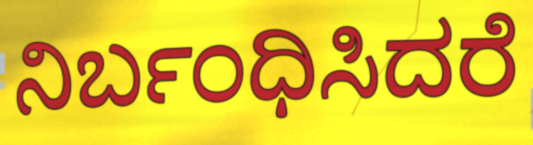
ನಿರ್ಬಂಧಿಸಿದರೆ